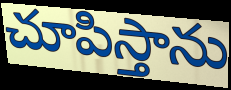
చూపిస్తాను